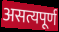
असत्यपूर्ण